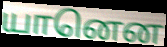
யானென